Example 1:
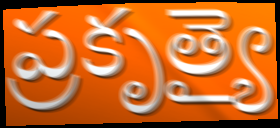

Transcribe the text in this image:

ప్రకృత్యై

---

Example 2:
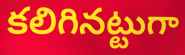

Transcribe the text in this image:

కలిగినట్టుగా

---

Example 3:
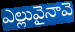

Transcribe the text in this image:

ఎల్లువైనావె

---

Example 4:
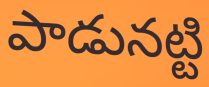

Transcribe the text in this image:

పాడునట్టి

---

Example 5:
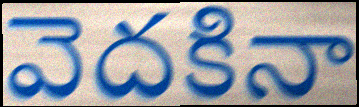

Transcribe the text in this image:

వెదకినా